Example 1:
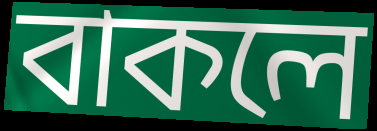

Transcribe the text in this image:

বাকলে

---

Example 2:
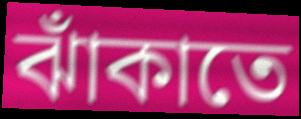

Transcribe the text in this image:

ঝাঁকাতে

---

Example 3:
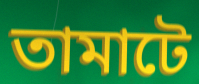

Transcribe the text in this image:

তামাটে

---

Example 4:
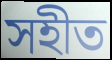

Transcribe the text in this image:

সহীত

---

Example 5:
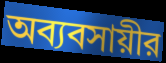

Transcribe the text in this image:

অব্যবসায়ীর